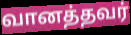
வானத்தவர்